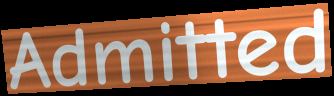
Admitted